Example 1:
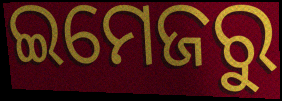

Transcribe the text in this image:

ଇମେଜରୁ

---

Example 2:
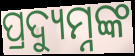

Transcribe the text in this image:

ପ୍ରଦ୍ୟୁମ୍ନଙ୍କ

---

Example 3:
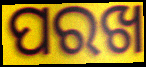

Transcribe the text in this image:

ପରଖ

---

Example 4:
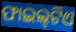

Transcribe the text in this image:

ଫାଇଲ୍‌ଟିଏ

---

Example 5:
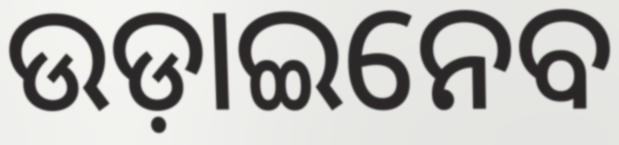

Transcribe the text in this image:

ଉଡ଼ାଇନେବ